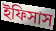
ইফিসাস